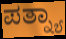
ಪತ್ನ್ಯಾ